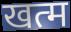
खत्‍म